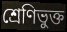
শ্রেণিভুক্ত